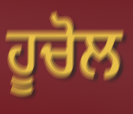
ਹੂਚੋਲ